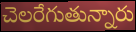
చెలరేగుతున్నారు